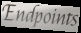
Endpoints